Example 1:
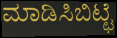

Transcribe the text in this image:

ಮಾಡಿಸಿಬಿಟ್ಟೆ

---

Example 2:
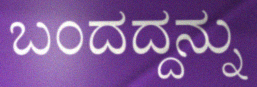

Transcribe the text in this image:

ಬಂದದ್ದನ್ನು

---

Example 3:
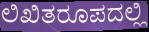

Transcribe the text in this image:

ಲಿಖಿತರೂಪದಲ್ಲಿ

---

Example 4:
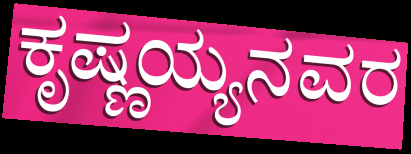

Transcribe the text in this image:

ಕೃಷ್ಣಯ್ಯನವರ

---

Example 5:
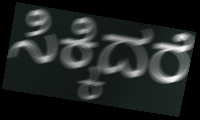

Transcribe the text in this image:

ಸಿಕ್ಕಿದರೆ